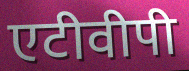
एटीवीपी